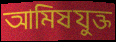
আমিষযুক্ত